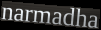
narmadha